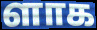
ளாக